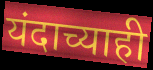
यंदाच्याही